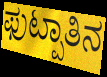
ಫುಟ್ಪಾತಿನ